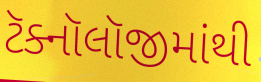
ટૅક્નૉલૉજીમાંથી